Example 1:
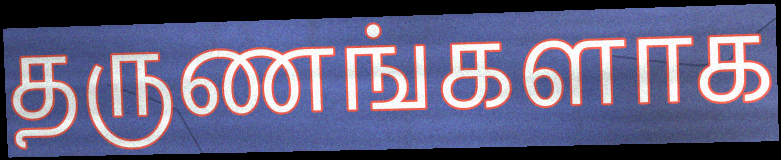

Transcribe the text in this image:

தருணங்களாக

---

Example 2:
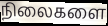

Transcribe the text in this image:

நிலைகளை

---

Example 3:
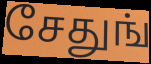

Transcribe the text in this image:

சேதுங்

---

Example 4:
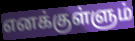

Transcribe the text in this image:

எனக்குள்ளும்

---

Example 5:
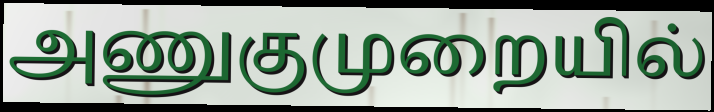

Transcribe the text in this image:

அணுகுமுறையில்